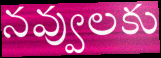
నవ్వులకు